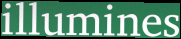
illumines